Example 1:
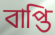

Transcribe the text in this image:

বাপ্তি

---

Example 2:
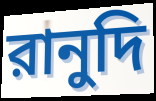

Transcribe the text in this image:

রানুদি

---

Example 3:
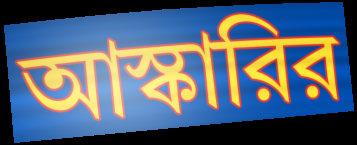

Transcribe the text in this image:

আস্কারির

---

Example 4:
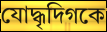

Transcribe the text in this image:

যোদ্ধৃদিগকে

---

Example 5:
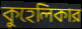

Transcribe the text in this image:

কুহেলিকার